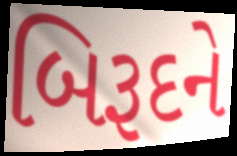
બિરૂદને